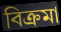
বিক্রমা